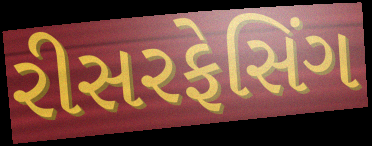
રીસરફેસિંગ